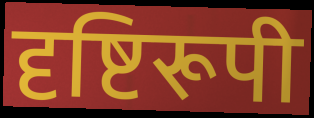
दृष्टिरूपी